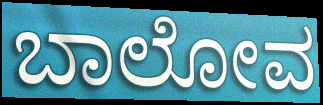
ಬಾಲೋವ